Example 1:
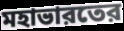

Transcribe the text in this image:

মহাভারতের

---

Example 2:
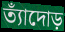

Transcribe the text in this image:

ত্যাঁদোড়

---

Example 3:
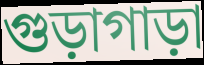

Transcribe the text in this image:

গুড়াগাড়া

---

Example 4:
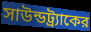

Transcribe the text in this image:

সাউন্ডট্র্যাকের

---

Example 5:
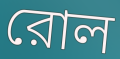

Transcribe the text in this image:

রোল